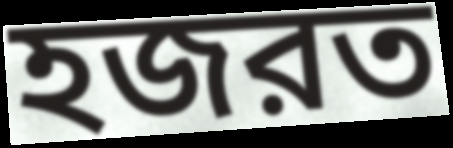
হজরত